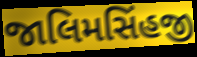
જાલિમસિંહજી